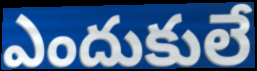
ఎందుకులే